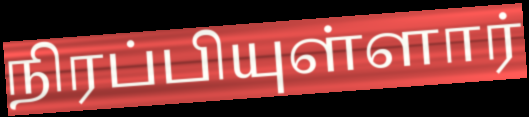
நிரப்பியுள்ளார்